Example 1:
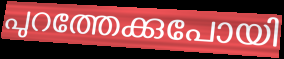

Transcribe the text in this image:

പുറത്തേക്കുപോയി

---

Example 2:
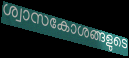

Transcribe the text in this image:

ശ്വാസകോശങ്ങളുടെ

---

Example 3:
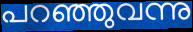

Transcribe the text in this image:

പറഞ്ഞുവന്നു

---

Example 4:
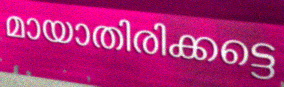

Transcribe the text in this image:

മായാതിരിക്കട്ടെ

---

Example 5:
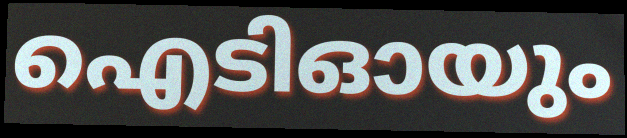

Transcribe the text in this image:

ഐടിഓയും